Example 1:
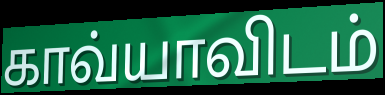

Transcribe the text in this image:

காவ்யாவிடம்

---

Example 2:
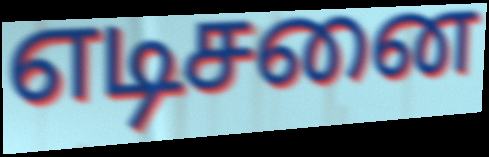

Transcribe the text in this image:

எடிசனை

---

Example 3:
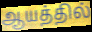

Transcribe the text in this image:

ஆயத்தில்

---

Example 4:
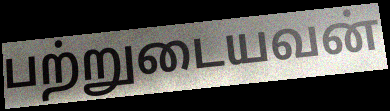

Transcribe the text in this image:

பற்றுடையவன்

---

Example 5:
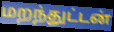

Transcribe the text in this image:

மறந்துட்டன்